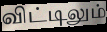
விட்டிலும்